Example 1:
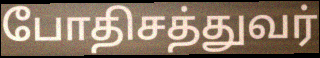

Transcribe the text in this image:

போதிசத்துவர்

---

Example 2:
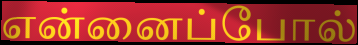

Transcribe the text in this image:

என்னைப்போல்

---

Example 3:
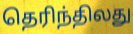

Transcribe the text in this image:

தெரிந்திலது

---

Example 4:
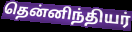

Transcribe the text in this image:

தென்னிந்தியர்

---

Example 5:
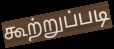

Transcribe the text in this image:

கூற்றுப்படி